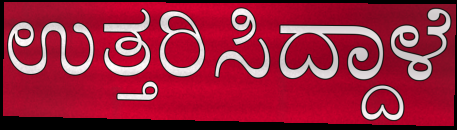
ಉತ್ತರಿಸಿದ್ದಾಳೆ